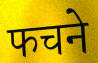
फचने